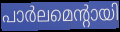
പാർലമെന്റായി